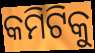
କମିଟିକୁ